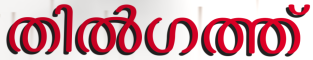
തിൽഗത്ത്